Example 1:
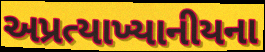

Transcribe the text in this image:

અપ્રત્યાખ્યાનીયના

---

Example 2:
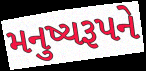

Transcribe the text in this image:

મનુષ્યરૂપને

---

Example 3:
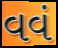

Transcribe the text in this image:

વવં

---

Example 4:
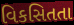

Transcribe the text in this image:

વિકસિતતા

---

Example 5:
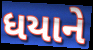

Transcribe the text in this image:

ધયાને